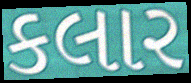
કલાર